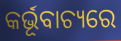
କର୍ଭୂବାଚ୍ୟରେ